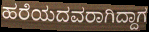
ಹರೆಯದವರಾಗಿದ್ದಾಗ